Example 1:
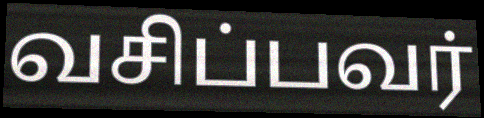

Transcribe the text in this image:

வசிப்பவர்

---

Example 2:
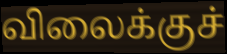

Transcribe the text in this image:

விலைக்குச்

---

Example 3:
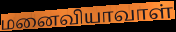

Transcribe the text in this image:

மனைவியாவாள்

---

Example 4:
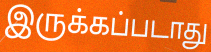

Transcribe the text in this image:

இருக்கப்படாது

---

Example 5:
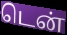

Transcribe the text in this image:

டென்